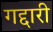
गद्दारी